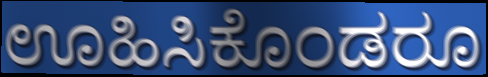
ಊಹಿಸಿಕೊಂಡರೂ